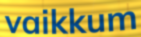
vaikkum